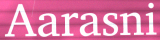
Aarasni